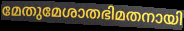
മേതുമേശാതഭിമതനായി